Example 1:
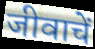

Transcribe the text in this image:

जीवाचें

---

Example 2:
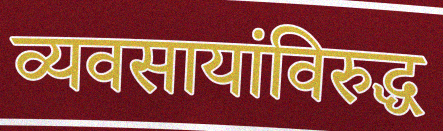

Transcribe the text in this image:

व्यवसायांविरुद्ध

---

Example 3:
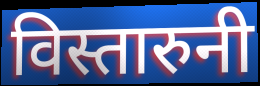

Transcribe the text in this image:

विस्तारुनी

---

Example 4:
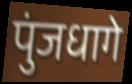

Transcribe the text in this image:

पुंजधागे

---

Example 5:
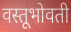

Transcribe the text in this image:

वस्तूभोवती